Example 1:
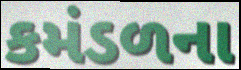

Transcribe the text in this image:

કમંડળના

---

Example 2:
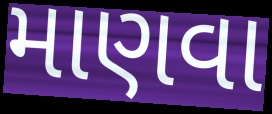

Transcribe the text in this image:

માણવા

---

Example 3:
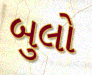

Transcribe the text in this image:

બુલો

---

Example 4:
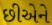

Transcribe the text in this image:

છીએને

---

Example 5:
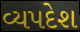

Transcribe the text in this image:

વ્યપદેશ